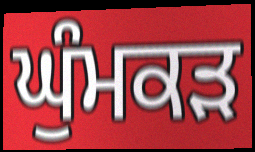
ਘੁੰਮਕੜ